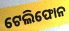
ଟେଲିଫୋନ